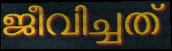
ജീവിച്ചത്